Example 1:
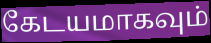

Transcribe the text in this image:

கேடயமாகவும்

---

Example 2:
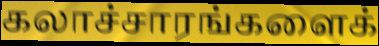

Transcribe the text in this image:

கலாச்சாரங்களைக்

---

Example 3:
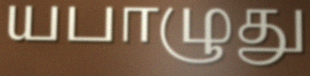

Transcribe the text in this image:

யபாழுது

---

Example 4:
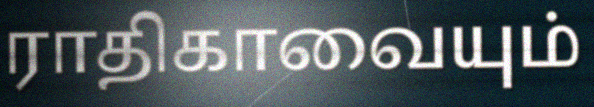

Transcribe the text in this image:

ராதிகாவையும்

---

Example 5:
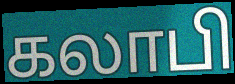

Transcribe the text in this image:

கலாபி